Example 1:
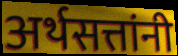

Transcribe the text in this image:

अर्थसत्तांनी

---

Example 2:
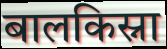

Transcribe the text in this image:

बालकिस्ना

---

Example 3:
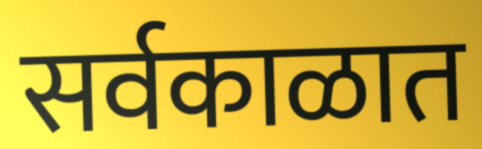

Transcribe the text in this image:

सर्वकाळात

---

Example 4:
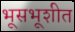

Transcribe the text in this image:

भूसभूशीत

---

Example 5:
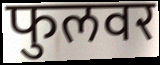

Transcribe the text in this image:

फुलवर